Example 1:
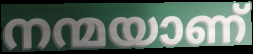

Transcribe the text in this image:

നന്മയാണ്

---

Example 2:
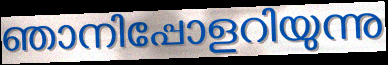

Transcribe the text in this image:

ഞാനിപ്പോളറിയുന്നു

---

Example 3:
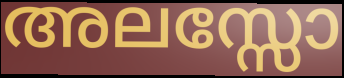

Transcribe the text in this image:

അലസ്സോ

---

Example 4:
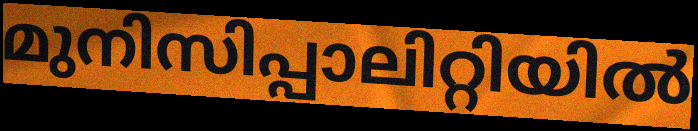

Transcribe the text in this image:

മുനിസിപ്പാലിറ്റിയിൽ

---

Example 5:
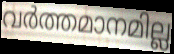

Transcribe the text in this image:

വർത്തമാനമില്ല